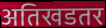
अतिखडतर